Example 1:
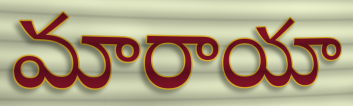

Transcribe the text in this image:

మారాయా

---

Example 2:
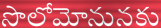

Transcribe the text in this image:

సొలోమోనునకు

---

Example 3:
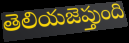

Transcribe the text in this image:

తెలియజెప్తుంది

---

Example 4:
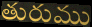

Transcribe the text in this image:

తురుము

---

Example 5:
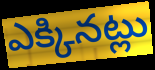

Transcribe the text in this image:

ఎక్కినట్లు